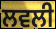
ਲਵਲੀ